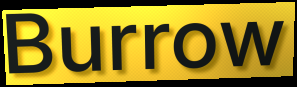
Burrow